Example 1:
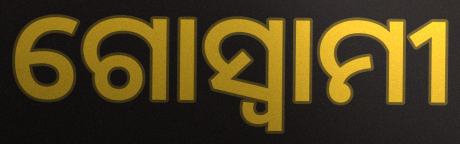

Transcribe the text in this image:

ଗୋସ୍ଵାମୀ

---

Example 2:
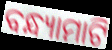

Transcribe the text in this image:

ବନ୍ଧ୍ୟାମାଟି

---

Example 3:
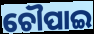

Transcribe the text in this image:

ଚୌପାଇ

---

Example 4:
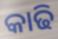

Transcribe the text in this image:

କାଢି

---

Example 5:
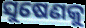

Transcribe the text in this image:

ସୁଷେଣକୁ